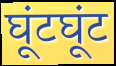
घूंटघूंट